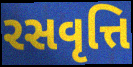
રસવૃત્તિ